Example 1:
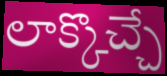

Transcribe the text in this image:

లాక్కొచ్చే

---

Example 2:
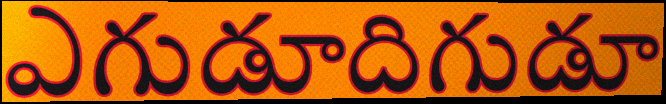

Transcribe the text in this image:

ఎగుడూదిగుడూ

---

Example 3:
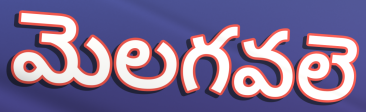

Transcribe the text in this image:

మెలగవలె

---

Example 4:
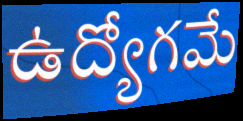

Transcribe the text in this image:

ఉద్యోగమే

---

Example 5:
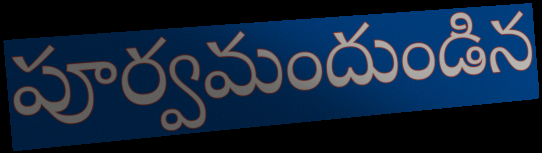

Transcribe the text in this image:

పూర్వమందుండిన